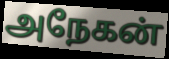
அநேகன்